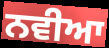
ਨਵੀਆ